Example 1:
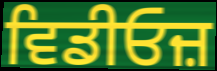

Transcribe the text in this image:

ਵਿਡੀਓਜ਼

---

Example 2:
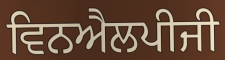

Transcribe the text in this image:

ਵਿਨਐਲਪੀਜੀ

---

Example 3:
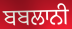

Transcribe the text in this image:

ਬਬਲਾਨੀ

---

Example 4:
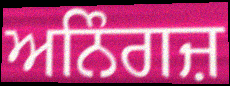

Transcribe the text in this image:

ਅਨਿੰਗਜ਼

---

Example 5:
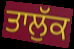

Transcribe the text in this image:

ਤਾਲੁੱਕ